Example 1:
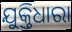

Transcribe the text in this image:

ଯୁକ୍ତିଧାରା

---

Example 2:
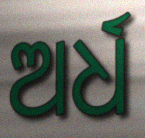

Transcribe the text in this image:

ଅର୍ଧ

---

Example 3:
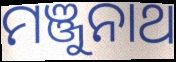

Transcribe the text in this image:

ମଞ୍ଜୁନାଥ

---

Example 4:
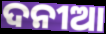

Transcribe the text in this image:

ଦନୀଆ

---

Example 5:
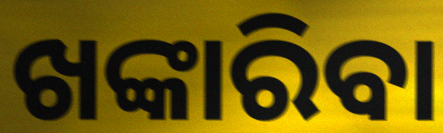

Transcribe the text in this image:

ଖଙ୍କାରିବା